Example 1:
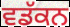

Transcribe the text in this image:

ਵਡੱਕਨ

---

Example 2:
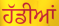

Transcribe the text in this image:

ਹੱਡੀਆਂ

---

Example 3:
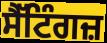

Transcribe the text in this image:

ਸੈੱਟਿੰਗਜ਼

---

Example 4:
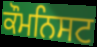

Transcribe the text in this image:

ਕੌਮਨਿਸਟ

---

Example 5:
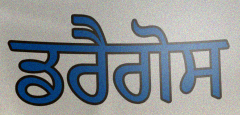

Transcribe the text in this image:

ਡਰੈਗੋਸ